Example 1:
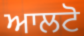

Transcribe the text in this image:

ਆਲਟੋ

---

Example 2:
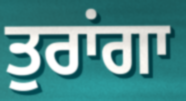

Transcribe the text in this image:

ਤੁਰਾਂਗਾ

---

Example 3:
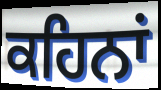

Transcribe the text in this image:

ਕਹਿਨਾਂ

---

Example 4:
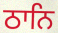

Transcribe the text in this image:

ਠਾਨਿ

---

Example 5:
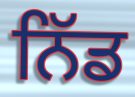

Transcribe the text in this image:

ਨਿੱਡ